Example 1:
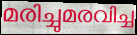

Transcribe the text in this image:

മരിച്ചുമരവിച്ച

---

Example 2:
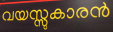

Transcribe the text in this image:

വയസ്സുകാരൻ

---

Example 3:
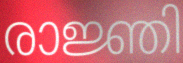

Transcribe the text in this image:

രാജ്ഞി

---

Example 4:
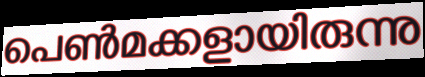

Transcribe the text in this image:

പെൺമക്കളായിരുന്നു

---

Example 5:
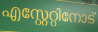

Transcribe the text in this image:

എസ്റ്റേറ്റിനോട്